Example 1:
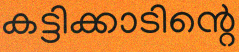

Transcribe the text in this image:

കട്ടിക്കാടിന്റെ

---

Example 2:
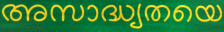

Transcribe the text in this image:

അസാദ്ധ്യതയെ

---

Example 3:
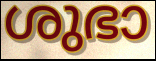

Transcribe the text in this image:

ശുഭാ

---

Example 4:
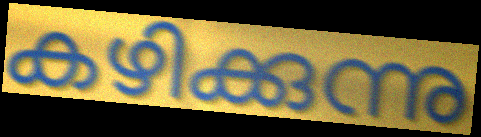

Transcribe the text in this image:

കഴിക്കുന്നു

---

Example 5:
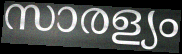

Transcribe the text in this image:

സാരള്യം